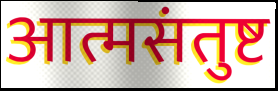
आत्मसंतुष्ट